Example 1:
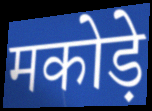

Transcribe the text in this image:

मकोड़े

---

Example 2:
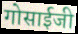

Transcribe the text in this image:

गोसाईजी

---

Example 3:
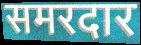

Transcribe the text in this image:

समरदार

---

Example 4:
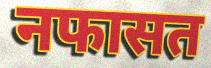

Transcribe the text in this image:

नफासत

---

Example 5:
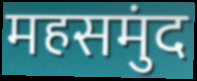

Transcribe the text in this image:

महसमुंद